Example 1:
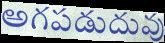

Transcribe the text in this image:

అగపడుదువు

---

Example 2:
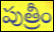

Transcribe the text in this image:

పుత్రీం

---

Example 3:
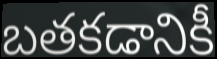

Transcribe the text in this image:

బతకడానికీ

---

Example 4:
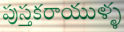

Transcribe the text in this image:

పుస్తకరాయుళ్ళ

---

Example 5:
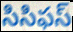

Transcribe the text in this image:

సిసిఫస్